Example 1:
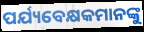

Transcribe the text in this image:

ପର୍ଯ୍ୟବେକ୍ଷକମାନଙ୍କୁ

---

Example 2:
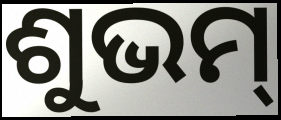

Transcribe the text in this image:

ଶୁଭମ୍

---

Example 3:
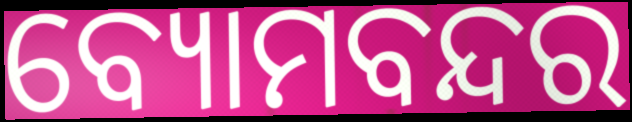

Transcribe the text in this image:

ବ୍ୟୋମବନ୍ଦର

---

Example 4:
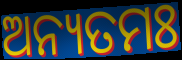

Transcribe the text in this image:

ଅନ୍ୟତମଃ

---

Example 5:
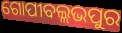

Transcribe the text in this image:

ଗୋପୀବଲ୍ଲଭପୁର